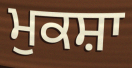
ਮੁਕਸ਼ਾ